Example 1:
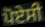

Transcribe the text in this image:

ਪੋਏਸੀ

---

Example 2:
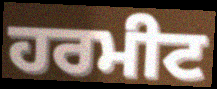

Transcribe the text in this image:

ਹਰਮੀਟ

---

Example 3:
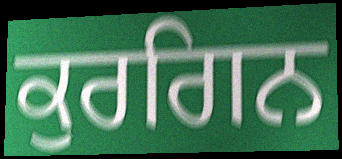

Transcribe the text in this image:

ਕੁਰਗਿਨ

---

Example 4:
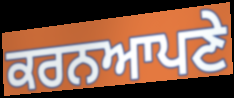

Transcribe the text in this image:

ਕਰਨਆਪਣੇ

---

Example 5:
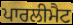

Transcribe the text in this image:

ਪਾਰਲੀਮੈਟ